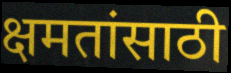
क्षमतांसाठी